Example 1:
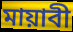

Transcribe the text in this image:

মায়াবী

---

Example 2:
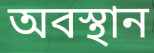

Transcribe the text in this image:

অবস্থান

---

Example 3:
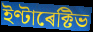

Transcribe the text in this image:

ইণ্টাৰেক্টিভ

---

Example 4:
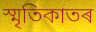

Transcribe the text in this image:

স্মৃতিকাতৰ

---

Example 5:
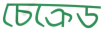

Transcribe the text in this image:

চেক্ৰেড